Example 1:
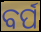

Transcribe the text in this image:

ବର୍ପ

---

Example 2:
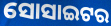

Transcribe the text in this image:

ସୋସାଇଟର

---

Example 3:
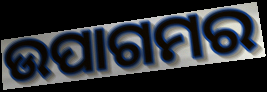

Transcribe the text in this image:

ଉପାଗମର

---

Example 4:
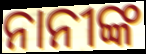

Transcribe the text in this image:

ନାନୀଙ୍କ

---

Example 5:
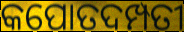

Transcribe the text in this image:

କପୋତଦମ୍ପତୀ